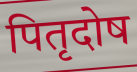
पितृदोष